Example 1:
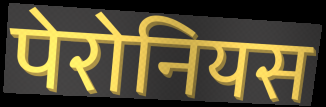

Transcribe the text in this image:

पेरोनियस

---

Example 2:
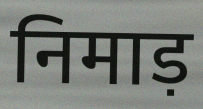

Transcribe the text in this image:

निमाड़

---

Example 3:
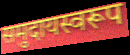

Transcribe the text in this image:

समुदायस्वरूप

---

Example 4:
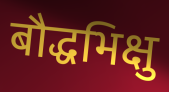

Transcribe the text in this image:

बौद्धभिक्षु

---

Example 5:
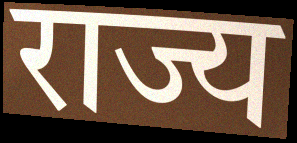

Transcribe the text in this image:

राज्‍य